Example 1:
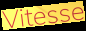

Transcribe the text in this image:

Vitesse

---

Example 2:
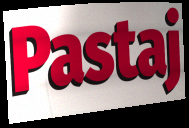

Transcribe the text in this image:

Pastaj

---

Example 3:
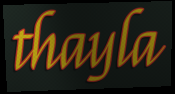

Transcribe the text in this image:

thayla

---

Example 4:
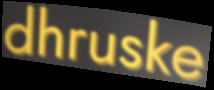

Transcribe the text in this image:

dhruske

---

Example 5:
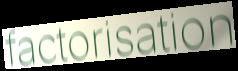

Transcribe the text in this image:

factorisation